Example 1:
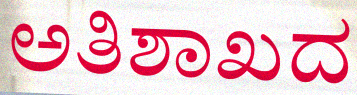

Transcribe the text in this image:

ಅತಿಶಾಖದ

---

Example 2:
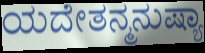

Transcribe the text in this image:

ಯದೇತನ್ಮನುಷ್ಯಾ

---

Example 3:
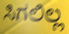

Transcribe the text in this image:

ಸಿಗಲಿಲ್ಲ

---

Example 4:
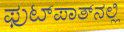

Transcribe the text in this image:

ಫುಟ್‌ಪಾತ್‌ನಲ್ಲಿ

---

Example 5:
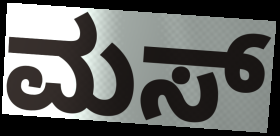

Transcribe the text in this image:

ಮಸ್